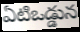
ఏటిఒడ్డున